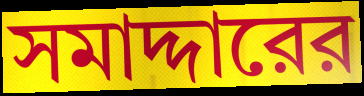
সমাদ্দারের